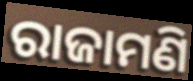
ରାଜାମଣି